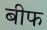
बीफ